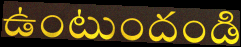
ఉంటుందండి